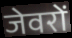
जेवरों